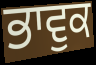
ਭਾਵੁਕ